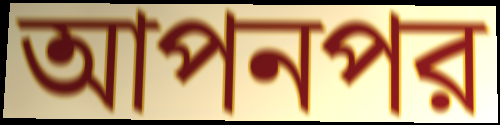
আপনপর